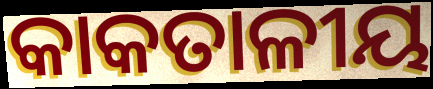
କାକତାଳୀୟ